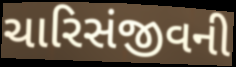
ચારિસંજીવની